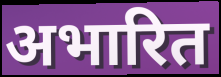
अभारित